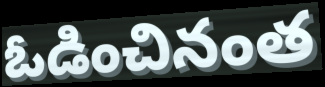
ఓడించినంత